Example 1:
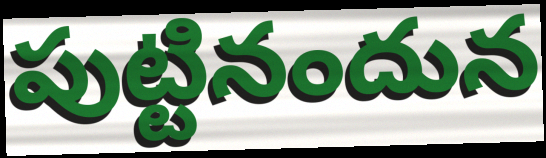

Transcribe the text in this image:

పుట్టినందున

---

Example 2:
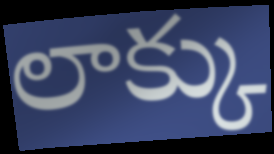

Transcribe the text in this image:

లాక్కు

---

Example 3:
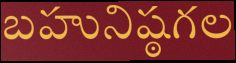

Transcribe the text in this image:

బహునిష్ఠగల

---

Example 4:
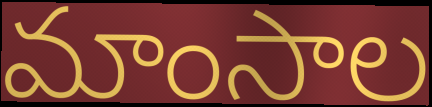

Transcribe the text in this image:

మాంసాల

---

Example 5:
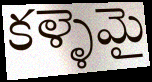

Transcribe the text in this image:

కళ్ళెమై